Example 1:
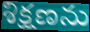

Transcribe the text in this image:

శిక్షణను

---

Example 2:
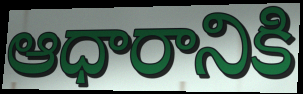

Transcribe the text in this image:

ఆధారానికి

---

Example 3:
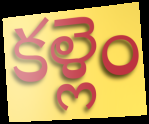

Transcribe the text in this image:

కళ్లెం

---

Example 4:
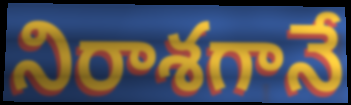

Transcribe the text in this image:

నిరాశగానే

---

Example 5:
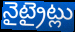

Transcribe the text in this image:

నైట్రైట్లు